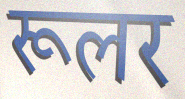
रूलर